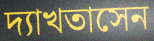
দ্যাখতাসেন